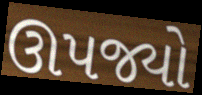
ઊપજ્યો